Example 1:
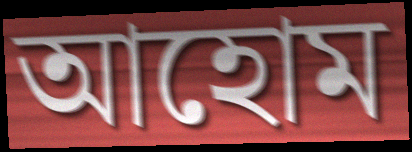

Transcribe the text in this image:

আহোম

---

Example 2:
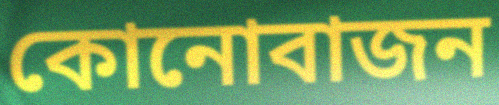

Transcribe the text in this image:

কোনোবাজন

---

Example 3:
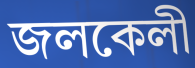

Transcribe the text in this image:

জলকেলী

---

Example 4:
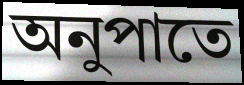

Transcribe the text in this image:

অনুপাতে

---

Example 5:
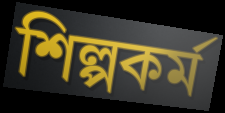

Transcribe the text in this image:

শিল্পকৰ্ম